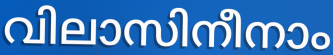
വിലാസിനീനാം